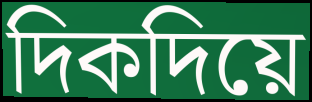
দিকদিয়ে